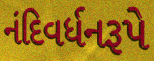
નંદિવર્ધનરૂપે